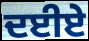
ਦਈਏ